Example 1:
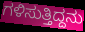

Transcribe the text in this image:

ಗಳಿಸುತ್ತಿದ್ದನು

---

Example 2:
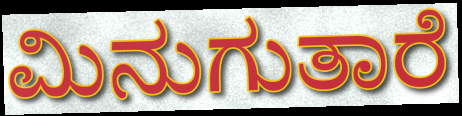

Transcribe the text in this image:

ಮಿನುಗುತಾರೆ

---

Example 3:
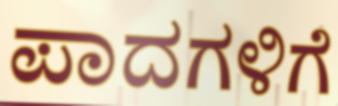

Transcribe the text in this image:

ಪಾದಗಳಿಗೆ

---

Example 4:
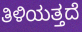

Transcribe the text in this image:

ತಿಳಿಯತ್ತದೆ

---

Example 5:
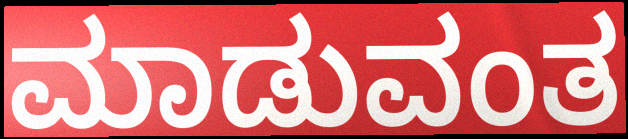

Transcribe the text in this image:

ಮಾಡುವಂತ